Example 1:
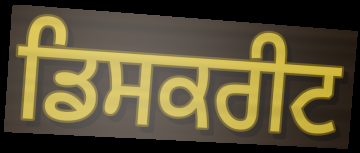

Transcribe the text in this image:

ਡਿਸਕਰੀਟ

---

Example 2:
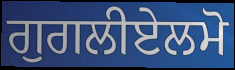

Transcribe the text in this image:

ਗੁਗਲੀਏਲਮੋ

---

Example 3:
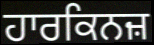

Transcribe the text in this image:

ਹਾਰਕਿਨਜ਼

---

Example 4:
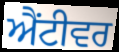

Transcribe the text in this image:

ਐਂਟੀਵਰ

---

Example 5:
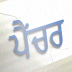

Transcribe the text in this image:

ਪੈਂਚਰ